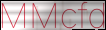
MMcfd